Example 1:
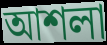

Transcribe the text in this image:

আশলা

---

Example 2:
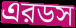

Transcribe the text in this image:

এরডস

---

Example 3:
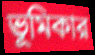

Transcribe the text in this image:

ভূমিকার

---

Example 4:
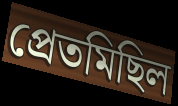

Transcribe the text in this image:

প্রেতমিছিল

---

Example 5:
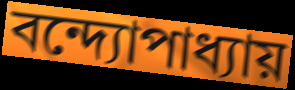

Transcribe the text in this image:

বন্দ্যোপাধ্যায়